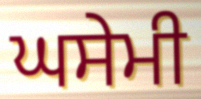
ਘਸੇਮੀ